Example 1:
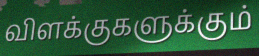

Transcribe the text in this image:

விளக்குகளுக்கும்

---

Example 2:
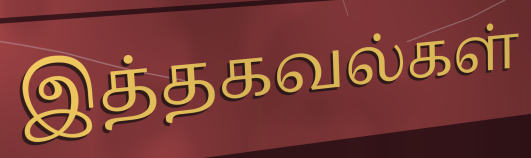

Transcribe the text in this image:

இத்தகவல்கள்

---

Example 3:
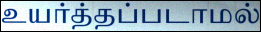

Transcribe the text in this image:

உயர்த்தப்படாமல்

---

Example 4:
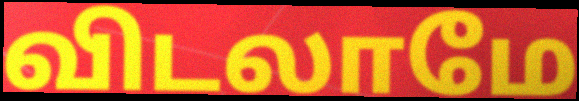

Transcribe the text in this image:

விடலாமே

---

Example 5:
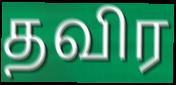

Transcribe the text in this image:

தவிர